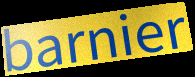
barnier